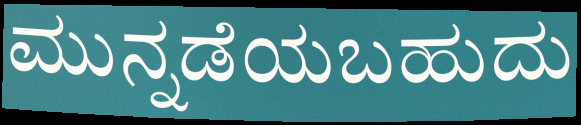
ಮುನ್ನಡೆಯಬಹುದು